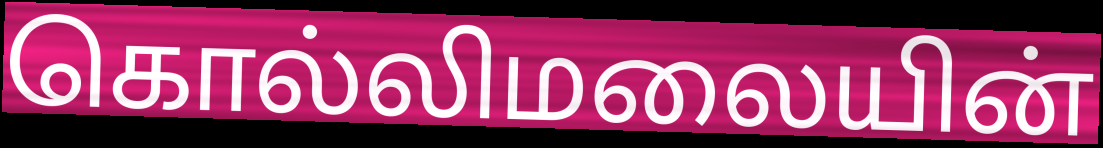
கொல்லிமலையின்